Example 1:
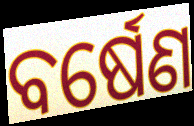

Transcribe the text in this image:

ବର୍ଷେଣ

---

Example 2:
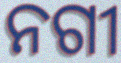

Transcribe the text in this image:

ନଗୀ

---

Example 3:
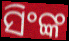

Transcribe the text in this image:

ସିଂଙ୍କ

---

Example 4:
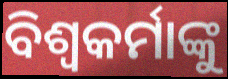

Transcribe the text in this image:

ବିଶ୍ଵକର୍ମାଙ୍କୁ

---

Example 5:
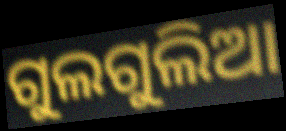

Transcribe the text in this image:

ଗୁଲଗୁଲିଆ